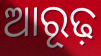
ଆରୂଢ଼